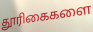
தூரிகைகளை